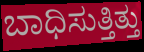
ಬಾಧಿಸುತ್ತಿತ್ತು